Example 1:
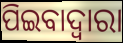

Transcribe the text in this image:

ପିଇବାଦ୍ଵାରା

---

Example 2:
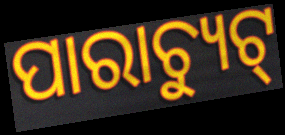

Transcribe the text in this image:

ପାରାଚ୍ୟୁଟ୍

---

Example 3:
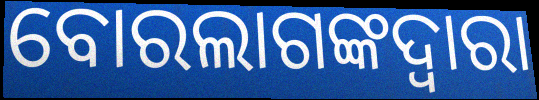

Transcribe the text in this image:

ବୋରଲାଗଙ୍କଦ୍ୱାରା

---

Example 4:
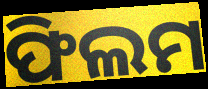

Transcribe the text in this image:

ଫିଲମ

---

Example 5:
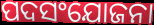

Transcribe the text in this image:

ପଦସଂଯୋଜନା